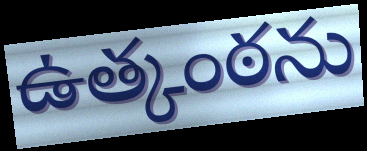
ఉత్కంఠను